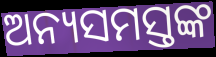
ଅନ୍ୟସମସ୍ତଙ୍କ